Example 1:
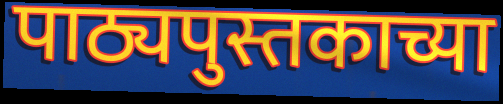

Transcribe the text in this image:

पाठ्यपुस्तकाच्या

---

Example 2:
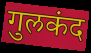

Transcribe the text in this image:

गुलकंद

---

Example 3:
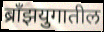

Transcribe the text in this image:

ब्राँझयुगातील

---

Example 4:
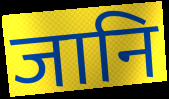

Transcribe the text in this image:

जानि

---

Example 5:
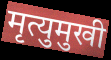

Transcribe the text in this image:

मृत्युमुखी